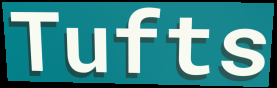
Tufts